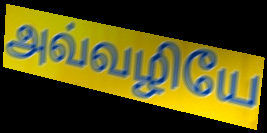
அவ்வழியே